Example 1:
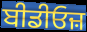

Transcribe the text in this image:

ਬੀਡੀਓਜ਼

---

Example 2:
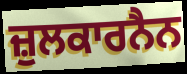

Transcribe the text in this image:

ਜ਼ੁਲਕਾਰਨੈਨ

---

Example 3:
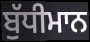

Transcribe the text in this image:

ਬੁੱਧੀਮਾਨ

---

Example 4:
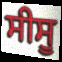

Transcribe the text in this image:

ਸੀਸੂ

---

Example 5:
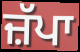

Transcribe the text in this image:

ਜ਼ੱਪਾ